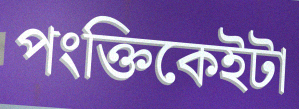
পংক্তিকেইটা